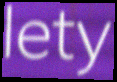
lety